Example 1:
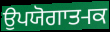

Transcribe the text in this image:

ਉਪਯੋਗਾਤ੍ਮਕ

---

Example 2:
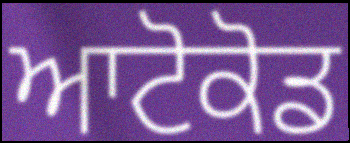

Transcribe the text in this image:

ਆਟੋਕੋਡ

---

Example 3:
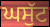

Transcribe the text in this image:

ਘਸੁੱਟ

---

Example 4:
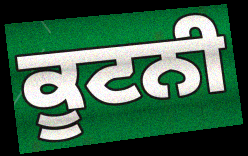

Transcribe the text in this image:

ਕੂਟਨੀ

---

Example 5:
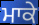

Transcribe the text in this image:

ਮਾਕੇ